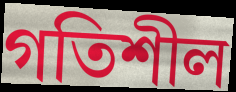
গতিশীল